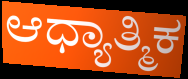
ಆಧ್ಯಾತ್ಮಿಕ